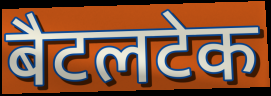
बैटलटेक